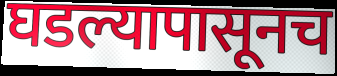
घडल्यापासूनच